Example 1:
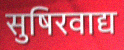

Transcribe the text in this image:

सुषिरवाद्य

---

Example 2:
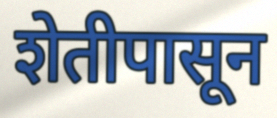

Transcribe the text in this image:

शेतीपासून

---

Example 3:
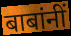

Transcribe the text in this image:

बाबांनीं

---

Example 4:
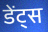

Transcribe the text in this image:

डेंट्स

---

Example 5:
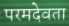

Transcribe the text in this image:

परमदेवता